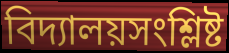
বিদ্যালয়সংশ্লিষ্ট